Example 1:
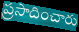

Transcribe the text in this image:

ప్రసాదించారు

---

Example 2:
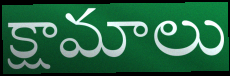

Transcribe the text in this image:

క్షామాలు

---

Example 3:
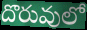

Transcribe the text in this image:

దొరువులో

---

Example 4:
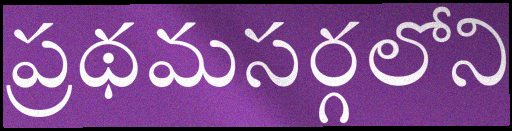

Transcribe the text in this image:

ప్రథమసర్గలోని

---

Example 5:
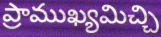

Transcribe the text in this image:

ప్రాముఖ్యమిచ్చి